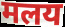
मलय